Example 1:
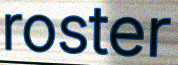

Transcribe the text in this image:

roster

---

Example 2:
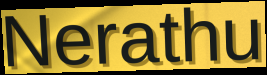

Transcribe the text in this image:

Nerathu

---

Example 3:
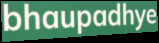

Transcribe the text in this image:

bhaupadhye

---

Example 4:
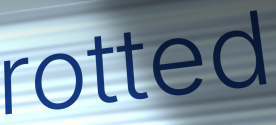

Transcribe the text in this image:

rotted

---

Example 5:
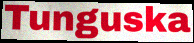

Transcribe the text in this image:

Tunguska